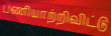
பணியாற்றிவிட்டு